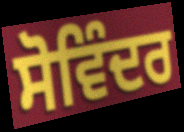
ਸੋਵਿੰਦਰ